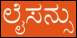
ಲೈಸನ್ಸು